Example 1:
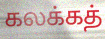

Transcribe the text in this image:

கலக்கத்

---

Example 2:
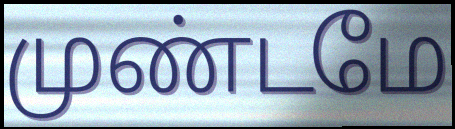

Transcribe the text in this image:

முண்டமே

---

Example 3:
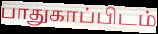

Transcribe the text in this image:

பாதுகாப்பிடம்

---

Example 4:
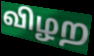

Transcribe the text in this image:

விழற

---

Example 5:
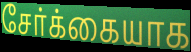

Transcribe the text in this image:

சேர்க்கையாக